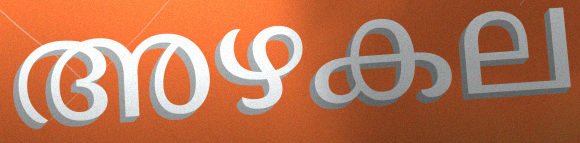
അഴകല